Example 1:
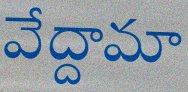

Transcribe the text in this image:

వేద్దామా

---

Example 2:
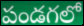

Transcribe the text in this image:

పండగలో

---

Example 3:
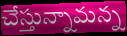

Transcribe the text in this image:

చేస్తున్నామన్న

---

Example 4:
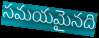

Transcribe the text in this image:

సమయమైనది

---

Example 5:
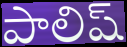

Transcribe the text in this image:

పాలిష్